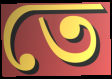
তে